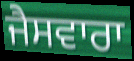
ਜੈਸਵਾਰਾ